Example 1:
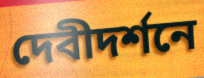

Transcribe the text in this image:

দেবীদর্শনে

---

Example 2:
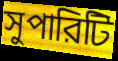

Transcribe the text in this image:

সুপারিটি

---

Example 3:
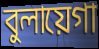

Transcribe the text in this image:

বুলায়েগা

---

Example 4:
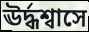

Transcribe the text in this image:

ঊর্দ্ধশ্বাসে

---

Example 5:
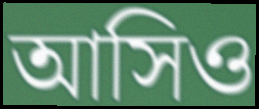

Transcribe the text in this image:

আসিও